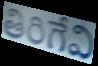
తిరిగేవి